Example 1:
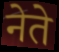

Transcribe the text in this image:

नेते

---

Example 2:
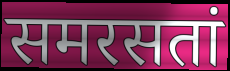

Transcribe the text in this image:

समरसतां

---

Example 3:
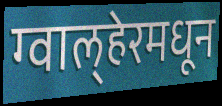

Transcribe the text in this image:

ग्वाल्हेरमधून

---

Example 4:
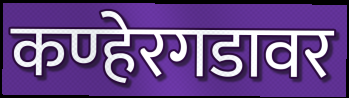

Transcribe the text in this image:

कण्हेरगडावर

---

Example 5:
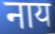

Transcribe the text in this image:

नाय